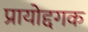
प्रायोद्दगक